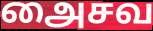
அைசவ